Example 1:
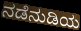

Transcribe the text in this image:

ನಡೆನುಡಿಯ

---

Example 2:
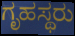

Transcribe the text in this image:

ಗೃಹಸ್ಥರು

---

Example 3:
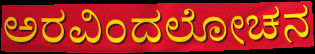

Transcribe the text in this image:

ಅರವಿಂದಲೋಚನ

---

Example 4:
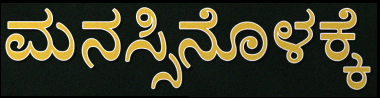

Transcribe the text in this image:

ಮನಸ್ಸಿನೊಳಕ್ಕೆ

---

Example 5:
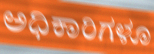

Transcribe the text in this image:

ಅಧಿಕಾರಿಗಳೂ